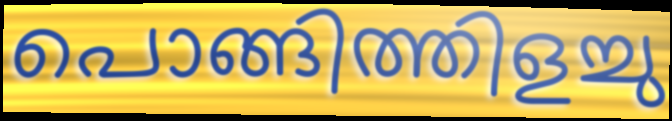
പൊങ്ങിത്തിളച്ചു